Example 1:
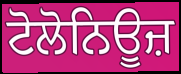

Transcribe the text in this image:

ਟੋਲੋਨਿਊਜ਼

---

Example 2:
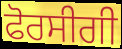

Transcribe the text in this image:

ਫੋਰਸੀਗੀ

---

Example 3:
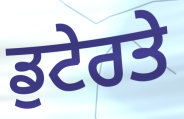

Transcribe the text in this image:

ਡੁਟੇਰਤੇ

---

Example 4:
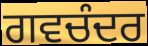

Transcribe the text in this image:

ਗਵਚੰਦਰ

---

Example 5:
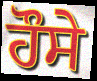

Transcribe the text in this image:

ਹੌਸੇ